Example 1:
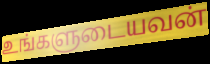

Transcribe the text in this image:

உங்களுடையவன்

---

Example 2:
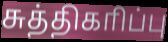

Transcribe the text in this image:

சுத்திகரிப்பு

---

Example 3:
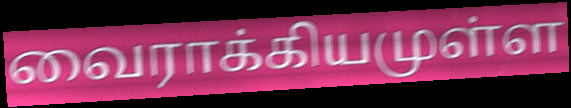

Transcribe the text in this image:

வைராக்கியமுள்ள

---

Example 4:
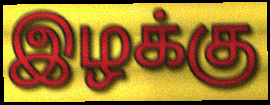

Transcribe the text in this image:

இழக்கு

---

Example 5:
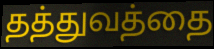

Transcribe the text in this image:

தத்துவத்தை